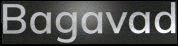
Bagavad